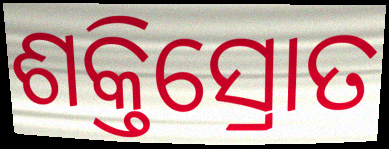
ଶକ୍ତିସ୍ରୋତ